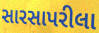
સારસાપરીલા